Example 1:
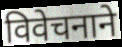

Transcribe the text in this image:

विवेचनाने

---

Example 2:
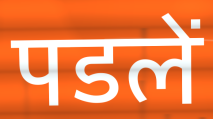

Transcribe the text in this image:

पडलें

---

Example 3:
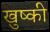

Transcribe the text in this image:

खुष्की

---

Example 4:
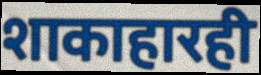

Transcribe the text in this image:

शाकाहारही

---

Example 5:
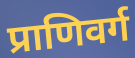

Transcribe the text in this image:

प्राणिवर्ग